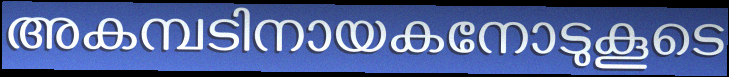
അകമ്പടിനായകനോടുകൂടെ